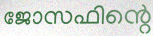
ജോസഫിന്റെ